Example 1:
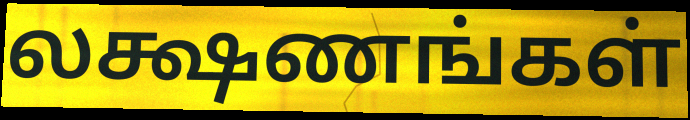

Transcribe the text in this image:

லக்ஷணங்கள்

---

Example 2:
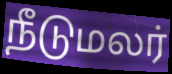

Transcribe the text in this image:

நீடுமலர்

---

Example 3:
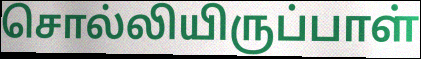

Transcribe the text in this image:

சொல்லியிருப்பாள்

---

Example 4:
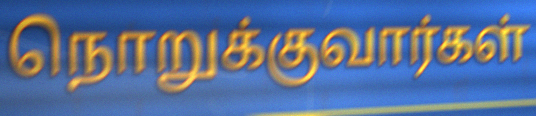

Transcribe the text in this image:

நொறுக்குவார்கள்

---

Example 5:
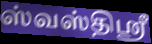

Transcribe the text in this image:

ஸ்வஸ்திஸ்ரீ